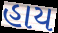
હાય